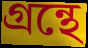
গ্ৰন্থে